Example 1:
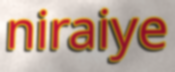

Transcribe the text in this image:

niraiye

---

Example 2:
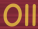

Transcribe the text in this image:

Oll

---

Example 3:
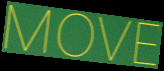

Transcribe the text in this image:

MOVE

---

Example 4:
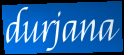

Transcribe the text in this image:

durjana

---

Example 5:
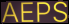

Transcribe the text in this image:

AEPS